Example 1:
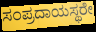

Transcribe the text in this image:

ಸಂಪ್ರದಾಯಸ್ಥರೇ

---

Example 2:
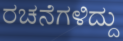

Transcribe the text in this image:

ರಚನೆಗಳಿದ್ದು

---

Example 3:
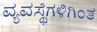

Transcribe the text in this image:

ವ್ಯವಸ್ಥೆಗಳಿಗಿಂತ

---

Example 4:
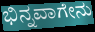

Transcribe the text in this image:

ಭಿನ್ನವಾಗೇನು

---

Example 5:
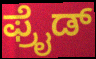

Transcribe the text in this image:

ಫ್ರೈಡ್